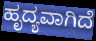
ಹೃದ್ಯವಾಗಿದೆ